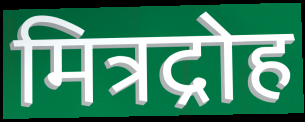
मित्रद्रोह